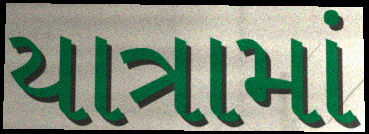
યાત્રામાં